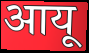
आयू